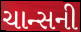
ચાન્સની